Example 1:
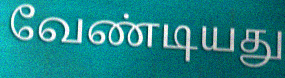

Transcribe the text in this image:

வேண்டியது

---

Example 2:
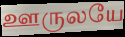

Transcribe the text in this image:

ஊருலயே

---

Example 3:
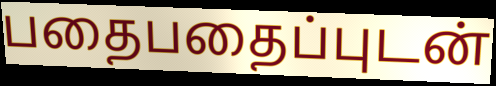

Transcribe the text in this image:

பதைபதைப்புடன்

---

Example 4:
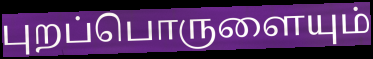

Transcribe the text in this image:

புறப்பொருளையும்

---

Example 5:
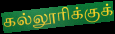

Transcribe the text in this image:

கல்லூரிக்குக்